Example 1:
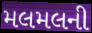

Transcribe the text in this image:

મલમલની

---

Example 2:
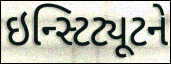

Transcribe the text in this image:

ઇન્સ્ટિટ્યૂટને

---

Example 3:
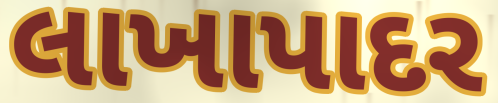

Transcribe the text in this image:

લાખાપાદર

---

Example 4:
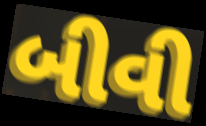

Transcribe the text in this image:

બીવી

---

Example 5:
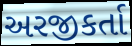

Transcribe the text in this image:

અરજીકર્તા